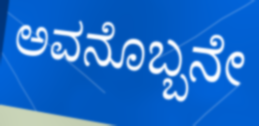
ಅವನೊಬ್ಬನೇ